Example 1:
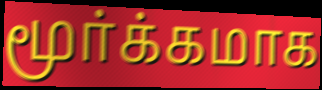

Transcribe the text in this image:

மூர்க்கமாக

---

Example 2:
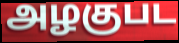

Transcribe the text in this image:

அழகுபட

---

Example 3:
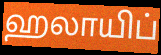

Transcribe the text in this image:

ஹலாயிப்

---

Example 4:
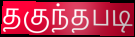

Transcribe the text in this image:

தகுந்தபடி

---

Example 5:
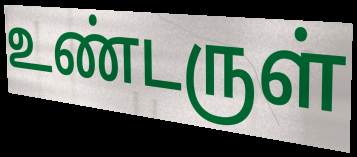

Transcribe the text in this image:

உண்டருள்